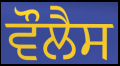
ਵੌਲੈਸ